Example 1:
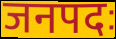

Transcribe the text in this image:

जनपदः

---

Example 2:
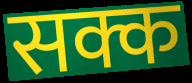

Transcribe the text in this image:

सक्क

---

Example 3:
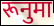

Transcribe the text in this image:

रूनुमा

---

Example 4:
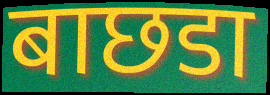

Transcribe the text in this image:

बाछडा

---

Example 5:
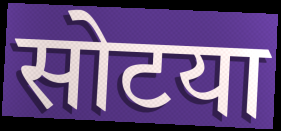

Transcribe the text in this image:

सोटया